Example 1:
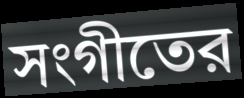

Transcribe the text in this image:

সংগীতের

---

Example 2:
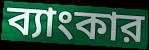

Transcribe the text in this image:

ব্যাংকার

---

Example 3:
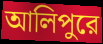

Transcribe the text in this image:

আলিপুরে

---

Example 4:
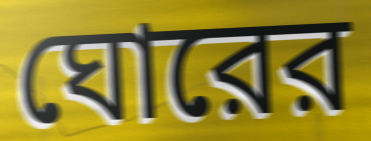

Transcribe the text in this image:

ঘোরের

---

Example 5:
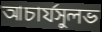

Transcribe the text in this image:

আচার্যসুলভ